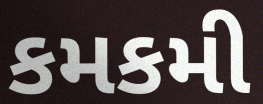
કમકમી